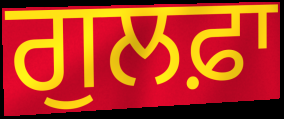
ਗੁਲਫ਼ਾ